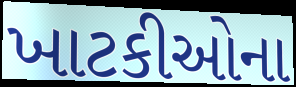
ખાટકીઓના